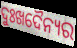
ଦୁଃଖଦୈନ୍ୟର